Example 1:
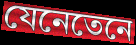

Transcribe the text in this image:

যেনেতেনে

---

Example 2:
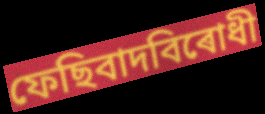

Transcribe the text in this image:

ফেছিবাদবিৰোধী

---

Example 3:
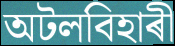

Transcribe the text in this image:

অটলবিহাৰী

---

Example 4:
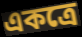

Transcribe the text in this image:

একত্ৰে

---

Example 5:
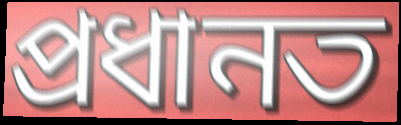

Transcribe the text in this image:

প্ৰধানত